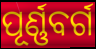
ପୂର୍ଣ୍ଣବର୍ଗ